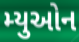
મ્યુઓન